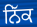
ਨਿੱਕ